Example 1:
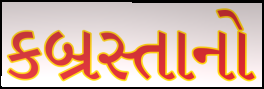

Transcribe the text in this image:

કબ્રસ્તાનો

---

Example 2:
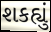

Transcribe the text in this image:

શકહ્યું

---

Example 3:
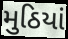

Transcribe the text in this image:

મુઠિયાં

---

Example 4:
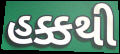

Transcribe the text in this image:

હક્કથી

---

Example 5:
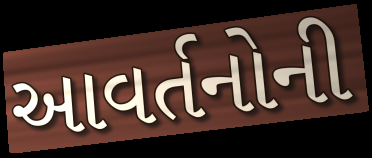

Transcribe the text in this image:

આવર્તનોની